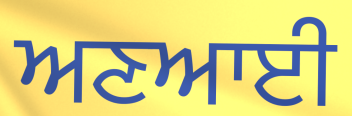
ਅਣਆਈ